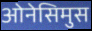
ओनेसिमुस